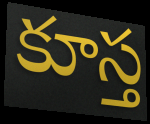
కూస్త